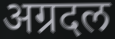
अग्रदल